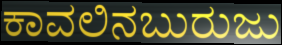
ಕಾವಲಿನಬುರುಜು